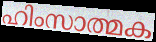
ഹിംസാത്മക